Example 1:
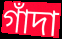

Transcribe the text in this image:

গাঁদা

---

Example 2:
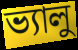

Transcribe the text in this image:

ভ্যালু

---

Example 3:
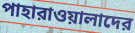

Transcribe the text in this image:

পাহারাওয়ালাদের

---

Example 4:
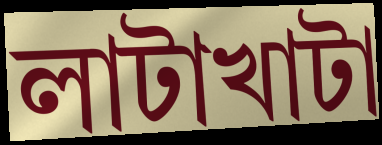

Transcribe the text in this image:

লাটাখাটা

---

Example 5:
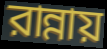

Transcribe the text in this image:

রান্নায়